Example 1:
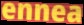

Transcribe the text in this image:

ennea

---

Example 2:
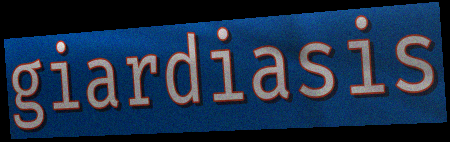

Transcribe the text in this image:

giardiasis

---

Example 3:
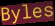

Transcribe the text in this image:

Byles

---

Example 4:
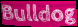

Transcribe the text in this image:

Bulldog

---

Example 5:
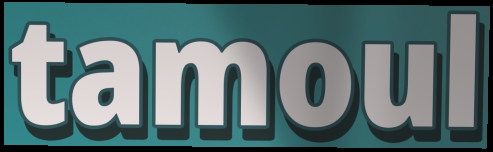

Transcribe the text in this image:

tamoul